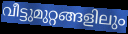
വീട്ടുമുറ്റങ്ങളിലും